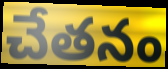
చేతనం